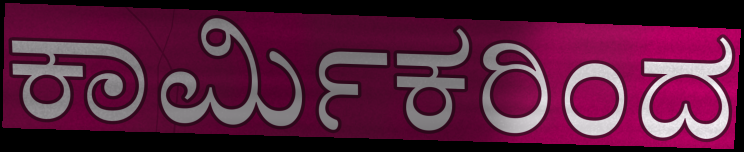
ಕಾರ್ಮಿಕರಿಂದ